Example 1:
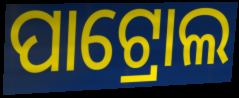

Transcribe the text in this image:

ପାଟ୍ରୋଲ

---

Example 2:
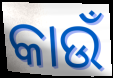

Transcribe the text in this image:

କାଉଁ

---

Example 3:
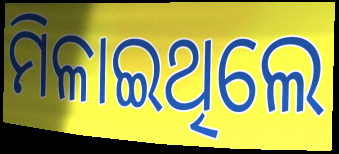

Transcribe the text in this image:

ମିଳାଇଥିଲେ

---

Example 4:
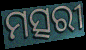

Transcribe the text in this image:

ମତ୍ସରୀ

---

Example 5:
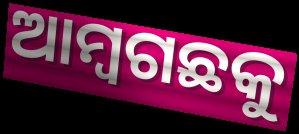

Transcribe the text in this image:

ଆମ୍ବଗଛକୁ